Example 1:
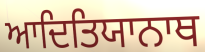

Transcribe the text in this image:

ਆਦਿਤਿਯਾਨਾਥ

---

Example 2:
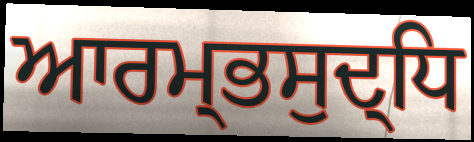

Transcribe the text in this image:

ਆਰਮ੍ਭਸੁਦ੍ਧਿ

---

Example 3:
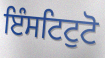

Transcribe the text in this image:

ਇੰਸਟਿਟੁਟੋ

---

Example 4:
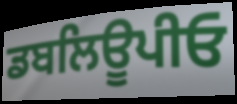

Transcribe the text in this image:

ਡਬਲਿਊਪੀਓ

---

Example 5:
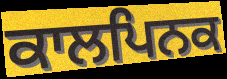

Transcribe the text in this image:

ਕਾਲਪਿਨਕ